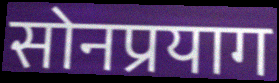
सोनप्रयाग